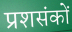
प्रशसंकों